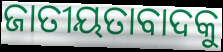
ଜାତୀୟତାବାଦକୁ